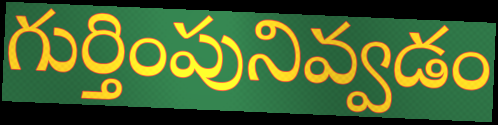
గుర్తింపునివ్వడం